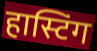
हास्टिंग